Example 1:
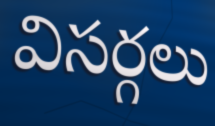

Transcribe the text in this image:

విసర్గలు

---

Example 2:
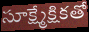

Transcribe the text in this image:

సూక్ష్మేక్షికతో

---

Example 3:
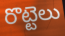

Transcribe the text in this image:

రొట్టెలు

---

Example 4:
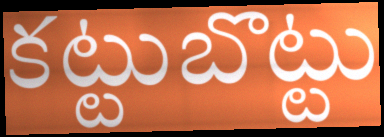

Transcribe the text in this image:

కట్టుబొట్టు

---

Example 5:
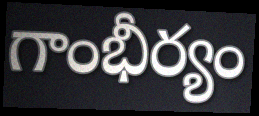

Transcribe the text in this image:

గాంభీర్యం